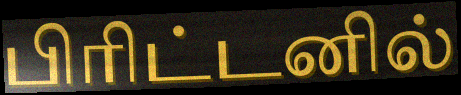
பிரிட்டனில்